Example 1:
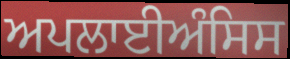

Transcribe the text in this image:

ਅਪਲਾਈਅੰਸਿਸ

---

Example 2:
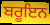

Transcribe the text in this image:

ਬਰੂਇਨ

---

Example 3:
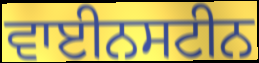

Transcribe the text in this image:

ਵਾਈਨਸਟੀਨ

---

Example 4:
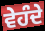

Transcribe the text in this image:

ਵੇਹੰਦੇ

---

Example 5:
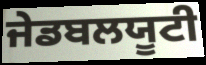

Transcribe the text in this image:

ਜੇਡਬਲਯੂਟੀ